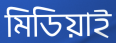
মিডিয়াই